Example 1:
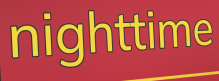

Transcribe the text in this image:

nighttime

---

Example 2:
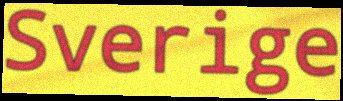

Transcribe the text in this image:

Sverige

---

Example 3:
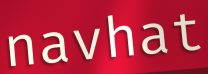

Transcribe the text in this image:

navhat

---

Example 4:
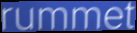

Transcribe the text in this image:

rummet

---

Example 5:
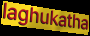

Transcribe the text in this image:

laghukatha